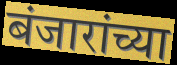
बंजारांच्या